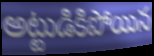
అట్టుడికిపోయిన